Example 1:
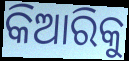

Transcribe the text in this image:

କିଆରିକୁ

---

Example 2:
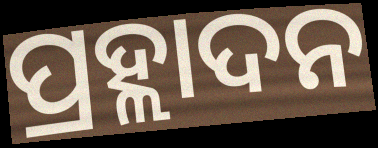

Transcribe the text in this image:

ପ୍ରହ୍ଲାଦନ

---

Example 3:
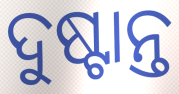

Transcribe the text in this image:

ଦୁଷ୍ଟାନ୍ତ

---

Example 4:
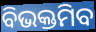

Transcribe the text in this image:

ବିଭକ୍ତମିବ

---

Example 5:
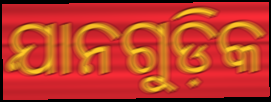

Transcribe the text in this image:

ଯାନଗୁଡ଼ିକ